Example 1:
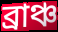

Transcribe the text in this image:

ব্রাঞ্চ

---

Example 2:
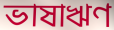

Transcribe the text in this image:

ভাষাঋণ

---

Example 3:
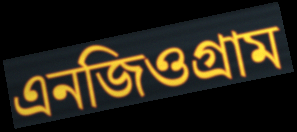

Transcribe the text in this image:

এনজিওগ্রাম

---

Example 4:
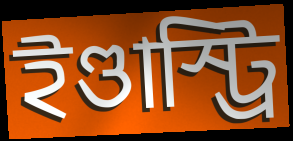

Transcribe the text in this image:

ইণ্ডাস্ট্রি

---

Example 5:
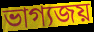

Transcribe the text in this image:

ভাগ্যজয়